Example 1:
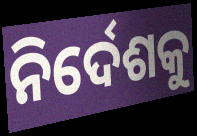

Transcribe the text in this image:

ନିର୍ଦେଶକୁ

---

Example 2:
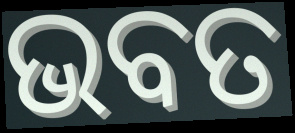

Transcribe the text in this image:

ଭବତ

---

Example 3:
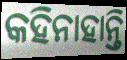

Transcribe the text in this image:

କହିନାହାନ୍ତି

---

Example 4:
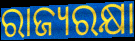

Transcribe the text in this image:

ରାଜ୍ୟରକ୍ଷା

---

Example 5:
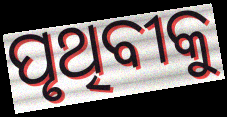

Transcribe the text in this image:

ପୃଥିବୀକୁ